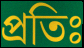
প্রতিঃ